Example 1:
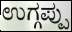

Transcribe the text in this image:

ಉಗ್ಗಪ್ಪು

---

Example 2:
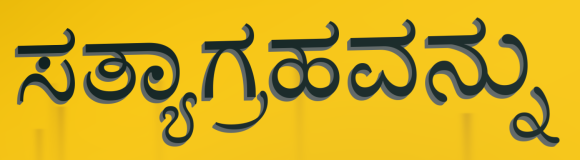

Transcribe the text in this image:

ಸತ್ಯಾಗ್ರಹವನ್ನು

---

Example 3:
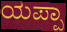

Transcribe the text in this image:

ಯಪ್ಪಾ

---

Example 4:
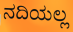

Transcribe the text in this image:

ನದಿಯಲ್ಲ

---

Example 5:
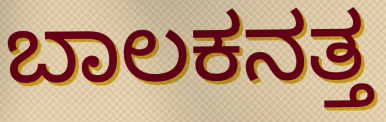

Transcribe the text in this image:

ಬಾಲಕನತ್ತ